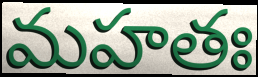
మహతః